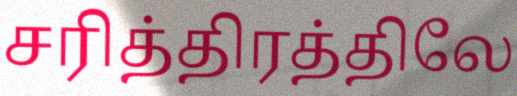
சரித்திரத்திலே